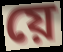
য়ে